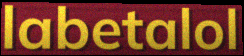
labetalol